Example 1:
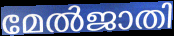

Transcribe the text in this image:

മേൽജാതി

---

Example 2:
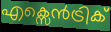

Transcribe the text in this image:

എക്സെൻട്രിക്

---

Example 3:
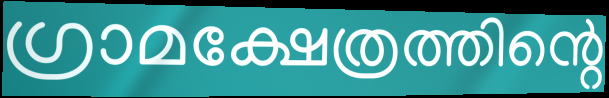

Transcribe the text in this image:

ഗ്രാമക്ഷേത്രത്തിന്റെ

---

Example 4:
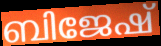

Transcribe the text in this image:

ബിജേഷ്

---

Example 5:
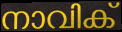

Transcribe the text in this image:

നാവിക്